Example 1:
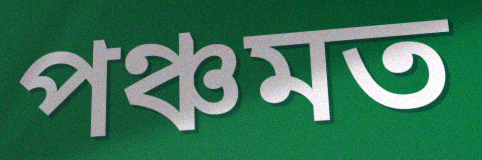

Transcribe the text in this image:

পঞ্চমত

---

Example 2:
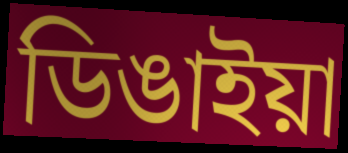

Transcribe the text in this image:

ডিঙাইয়া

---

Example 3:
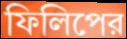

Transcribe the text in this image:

ফিলিপের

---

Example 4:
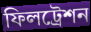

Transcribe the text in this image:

ফিলট্রেশন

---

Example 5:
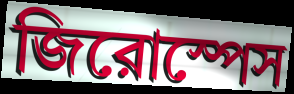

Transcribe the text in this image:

জিরোস্পেস